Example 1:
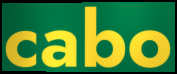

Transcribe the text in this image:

cabo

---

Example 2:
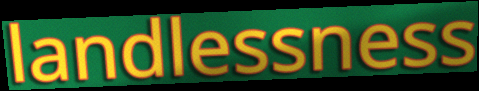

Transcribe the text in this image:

landlessness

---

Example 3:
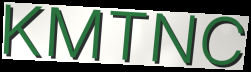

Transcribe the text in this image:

KMTNC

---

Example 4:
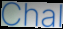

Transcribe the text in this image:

Chal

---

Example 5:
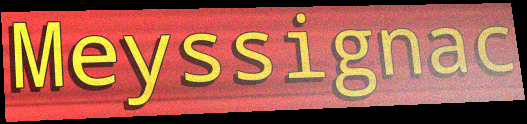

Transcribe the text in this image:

Meyssignac